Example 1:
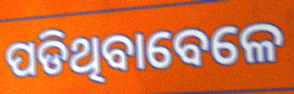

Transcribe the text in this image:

ପଡିଥିବାବେଳେ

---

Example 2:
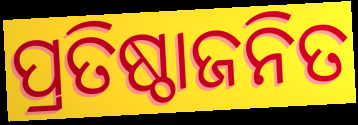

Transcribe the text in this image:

ପ୍ରତିଷ୍ଠାଜନିତ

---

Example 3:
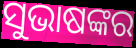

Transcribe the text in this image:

ସୁଭାଷଙ୍କର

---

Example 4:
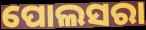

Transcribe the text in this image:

ପୋଲସରା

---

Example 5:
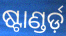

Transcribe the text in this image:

ଷ୍ଟାଣ୍ଡର୍ଡ଼